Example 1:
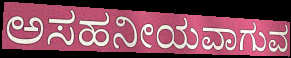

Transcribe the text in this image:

ಅಸಹನೀಯವಾಗುವ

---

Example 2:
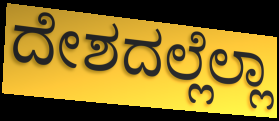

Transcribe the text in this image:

ದೇಶದಲ್ಲೆಲ್ಲಾ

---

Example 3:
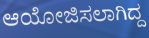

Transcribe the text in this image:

ಆಯೋಜಿಸಲಾಗಿದ್ದ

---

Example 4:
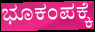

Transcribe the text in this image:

ಭೂಕಂಪಕ್ಕೆ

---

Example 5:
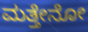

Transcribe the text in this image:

ಮತ್ತೇನೋ